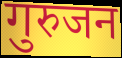
गुरुजन